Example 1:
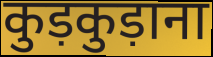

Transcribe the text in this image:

कुड़कुड़ाना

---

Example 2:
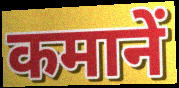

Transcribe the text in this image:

कमानें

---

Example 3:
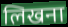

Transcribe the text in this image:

लिखना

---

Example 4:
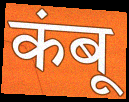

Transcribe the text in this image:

कंबू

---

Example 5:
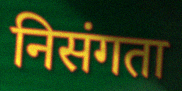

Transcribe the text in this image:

निसंगता